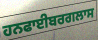
ਹਨਫਾਈਬਰਗਲਾਸ